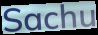
Sachu